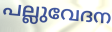
പല്ലുവേദന